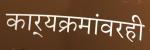
कार्यक्रमांवरही